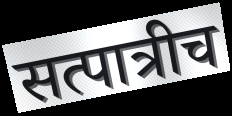
सत्पात्रीच